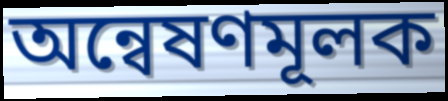
অন্বেষণমূলক